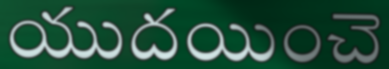
యుదయించె